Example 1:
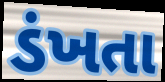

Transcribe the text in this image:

ડંખતા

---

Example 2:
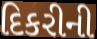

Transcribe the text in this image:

દિકરીની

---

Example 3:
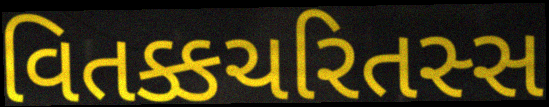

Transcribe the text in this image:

વિતક્કચરિતસ્સ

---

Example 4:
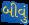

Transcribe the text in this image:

બીવું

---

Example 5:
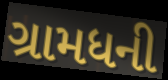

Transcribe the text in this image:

ગ્રામધની